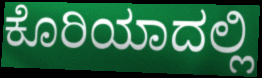
ಕೊರಿಯಾದಲ್ಲಿ